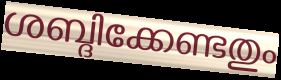
ശബ്ദിക്കേണ്ടതും